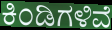
ಕಿಂಡಿಗಳಿವೆ